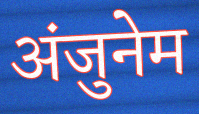
अंजुनेम